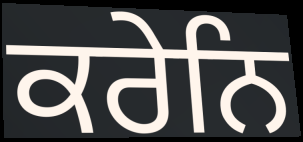
ਕਰੇਨਿ